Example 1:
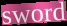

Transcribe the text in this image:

sword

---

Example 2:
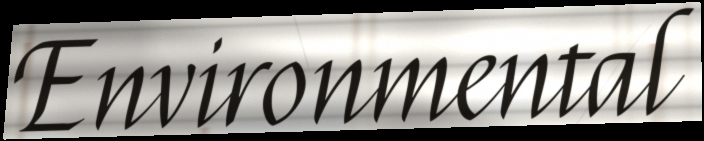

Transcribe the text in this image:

Environmental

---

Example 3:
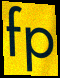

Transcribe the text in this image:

fp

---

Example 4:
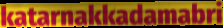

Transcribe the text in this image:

katarnakkadamabri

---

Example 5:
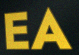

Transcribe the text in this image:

EA